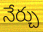
నేర్చు